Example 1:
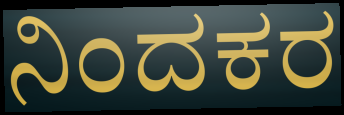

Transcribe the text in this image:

ನಿಂದಕರ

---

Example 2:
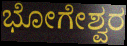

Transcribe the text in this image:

ಭೋಗೇಶ್ವರ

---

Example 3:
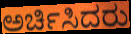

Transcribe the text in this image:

ಅರ್ಚಿಸಿದರು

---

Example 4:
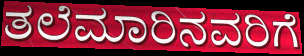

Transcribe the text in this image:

ತಲೆಮಾರಿನವರಿಗೆ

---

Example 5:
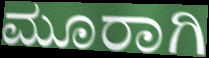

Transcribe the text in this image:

ಮೂರಾಗಿ